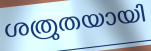
ശത്രുതയായി